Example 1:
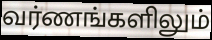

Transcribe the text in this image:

வர்ணங்களிலும்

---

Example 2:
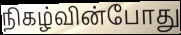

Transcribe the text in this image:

நிகழ்வின்போது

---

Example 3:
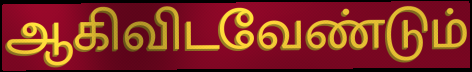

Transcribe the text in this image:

ஆகிவிடவேண்டும்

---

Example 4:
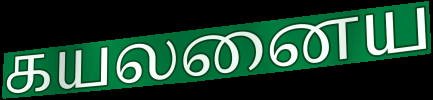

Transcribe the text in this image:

கயலனைய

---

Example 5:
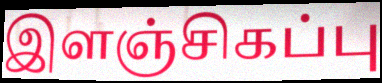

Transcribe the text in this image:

இளஞ்சிகப்பு